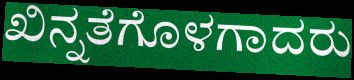
ಖಿನ್ನತೆಗೊಳಗಾದರು